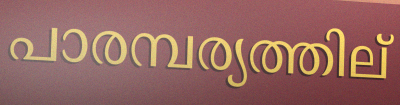
പാരമ്പര്യത്തില്